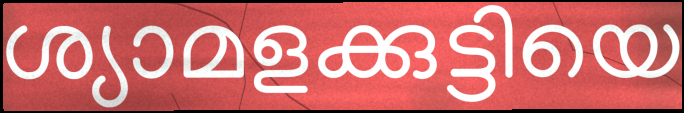
ശ്യാമളക്കുട്ടിയെ